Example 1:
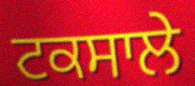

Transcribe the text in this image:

ਟਕਸਾਲੇ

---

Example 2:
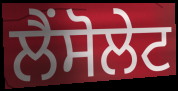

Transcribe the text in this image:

ਲੈਂਸੋਲੇਟ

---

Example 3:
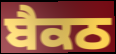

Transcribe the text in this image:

ਬੈਕਠ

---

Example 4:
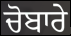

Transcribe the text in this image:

ਚੋਬਾਰੇ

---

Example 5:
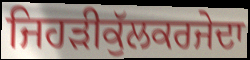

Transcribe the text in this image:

ਜਿਹੜੀਕੁੱਲਕਰਜੇਦਾ